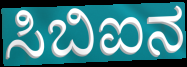
ಸಿಬಿಐನ